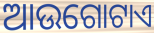
ଆଉଗୋଟାଏ